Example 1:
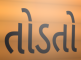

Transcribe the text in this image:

તોડતો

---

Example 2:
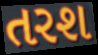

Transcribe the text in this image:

તરશ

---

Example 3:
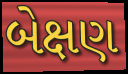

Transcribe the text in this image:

બેક્ષણ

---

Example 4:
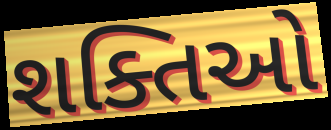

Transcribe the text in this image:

શક્તિઓ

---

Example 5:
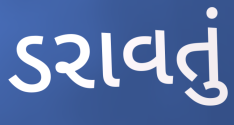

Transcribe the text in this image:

ડરાવતું